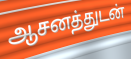
ஆசனத்துடன்